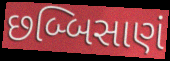
છબ્બિસાણં